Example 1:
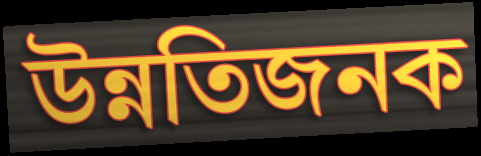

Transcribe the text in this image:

উন্নতিজনক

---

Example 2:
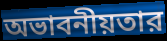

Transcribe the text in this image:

অভাবনীয়তার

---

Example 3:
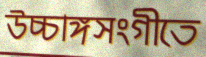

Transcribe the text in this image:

উচ্চাঙ্গসংগীতে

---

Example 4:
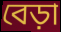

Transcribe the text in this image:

বেড়া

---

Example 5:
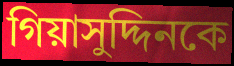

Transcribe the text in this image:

গিয়াসুদ্দিনকে